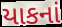
યાકનાં